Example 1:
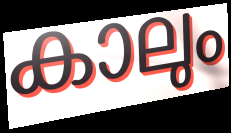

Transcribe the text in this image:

കാലും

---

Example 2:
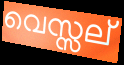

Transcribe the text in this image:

വെസ്സല്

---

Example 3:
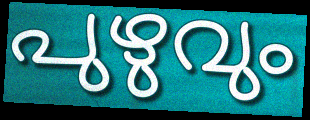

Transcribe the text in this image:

പുഴുവും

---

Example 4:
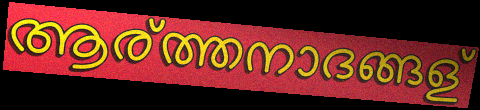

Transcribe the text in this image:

ആര്ത്തനാദങ്ങള്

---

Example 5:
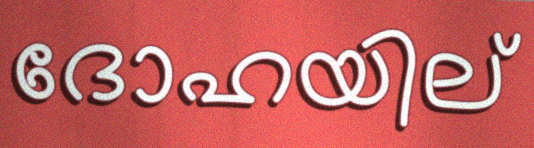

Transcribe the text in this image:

ദോഹയില്